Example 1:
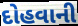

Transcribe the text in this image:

દોહવાની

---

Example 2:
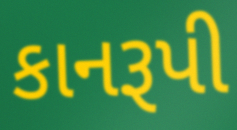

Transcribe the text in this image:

કાનરૂપી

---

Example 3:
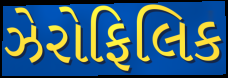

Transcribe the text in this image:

ઝેરોફિલિક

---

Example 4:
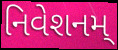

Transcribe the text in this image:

નિવેશનમ્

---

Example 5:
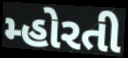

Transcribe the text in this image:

મ્હોરતી